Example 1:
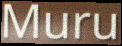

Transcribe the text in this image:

Muru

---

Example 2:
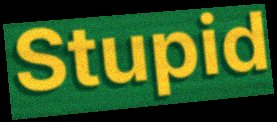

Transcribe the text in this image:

Stupid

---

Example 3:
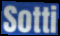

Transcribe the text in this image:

Sotti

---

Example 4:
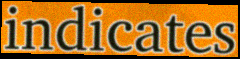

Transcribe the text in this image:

indicates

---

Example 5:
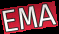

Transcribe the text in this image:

EMA